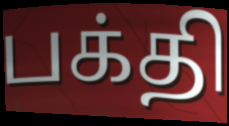
பக்தி